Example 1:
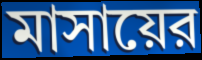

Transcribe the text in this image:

মাসায়ের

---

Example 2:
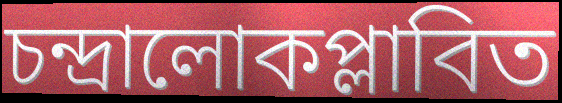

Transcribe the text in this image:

চন্দ্রালোকপ্লাবিত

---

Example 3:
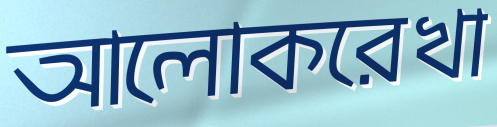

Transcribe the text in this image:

আলোকরেখা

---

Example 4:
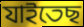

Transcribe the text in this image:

যাইতেছ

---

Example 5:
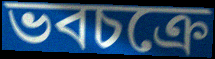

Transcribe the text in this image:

ভবচক্রে